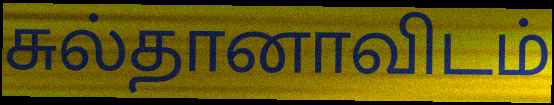
சுல்தானாவிடம்